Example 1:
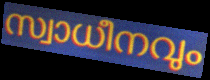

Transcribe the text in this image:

സ്വാധീനവും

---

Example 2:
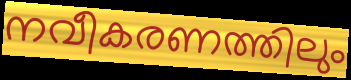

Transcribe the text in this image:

നവീകരണത്തിലും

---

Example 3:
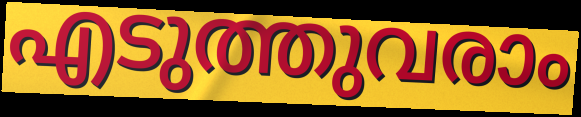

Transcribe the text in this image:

എടുത്തുവരാം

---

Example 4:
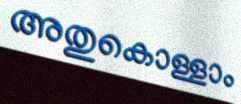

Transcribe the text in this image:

അതുകൊള്ളാം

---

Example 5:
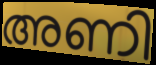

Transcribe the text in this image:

അണി